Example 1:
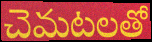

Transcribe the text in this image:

చెమటలతో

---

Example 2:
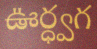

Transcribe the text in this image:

ఊర్ధ్వగ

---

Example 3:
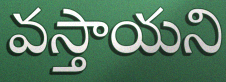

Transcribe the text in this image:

వస్తాయని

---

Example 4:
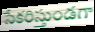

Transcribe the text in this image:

సేకరిస్తుండగా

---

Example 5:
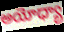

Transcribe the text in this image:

అయోధ్యా